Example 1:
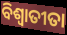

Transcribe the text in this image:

ବିଶ୍ଵାତୀତା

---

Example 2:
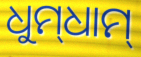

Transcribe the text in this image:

ଧୁମ୍‌ଧାମ୍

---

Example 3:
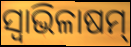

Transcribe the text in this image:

ସ୍ବାଭିଳାଷମ୍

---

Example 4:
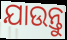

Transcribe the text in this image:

ଯାଉନ୍ତୁ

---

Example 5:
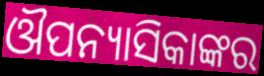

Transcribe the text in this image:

ଔପନ୍ୟାସିକାଙ୍କର